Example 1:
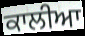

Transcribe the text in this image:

ਕਾਲੀਆ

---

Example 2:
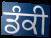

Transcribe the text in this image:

ਡੰਕੀ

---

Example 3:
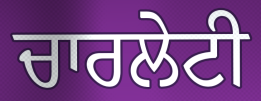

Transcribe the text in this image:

ਚਾਰਲੇਟੀ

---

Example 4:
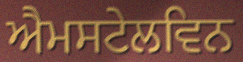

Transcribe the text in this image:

ਐਮਸਟੇਲਵਿਨ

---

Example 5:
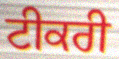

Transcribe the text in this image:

ਟੀਕਰੀ